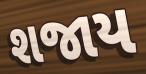
શજાય